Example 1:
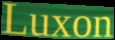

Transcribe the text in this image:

Luxon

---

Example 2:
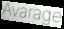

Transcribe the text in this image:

Avarage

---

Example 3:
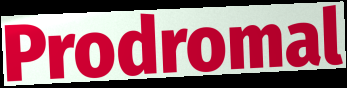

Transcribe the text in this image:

Prodromal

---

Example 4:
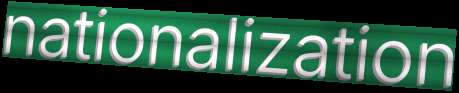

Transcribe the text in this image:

nationalization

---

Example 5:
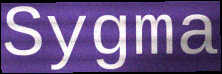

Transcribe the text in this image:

Sygma